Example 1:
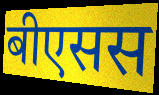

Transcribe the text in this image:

बीएसस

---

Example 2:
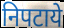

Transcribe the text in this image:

निपटाये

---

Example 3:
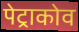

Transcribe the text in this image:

पेट्राकोव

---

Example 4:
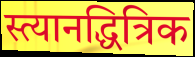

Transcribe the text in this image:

स्त्यानद्धित्रिक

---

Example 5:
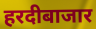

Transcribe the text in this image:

हरदीबाजार